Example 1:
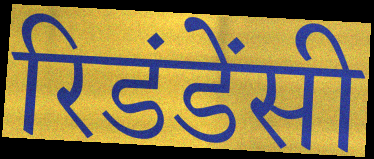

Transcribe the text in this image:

रिडंडेंसी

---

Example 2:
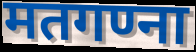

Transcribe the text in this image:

मतगण्ना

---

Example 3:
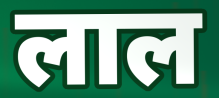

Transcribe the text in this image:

लाल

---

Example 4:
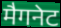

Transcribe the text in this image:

मैगनेट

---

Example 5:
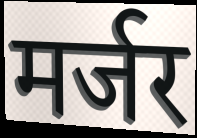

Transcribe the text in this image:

मर्जर